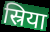
स्रिया